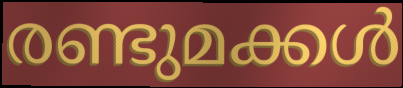
രണ്ടുമക്കൾ